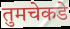
तुमचेकडे